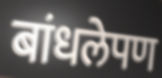
बांधलेपण